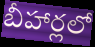
బీహార్లలో